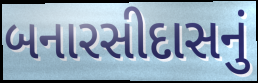
બનારસીદાસનું